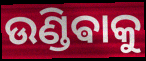
ଉଣ୍ଡିଵାକୁ